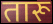
तारू